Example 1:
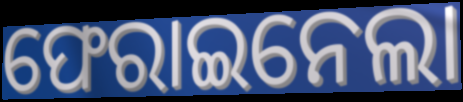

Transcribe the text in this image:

ଫେରାଇନେଲା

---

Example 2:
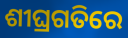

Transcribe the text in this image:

ଶୀଘ୍ରଗତିରେ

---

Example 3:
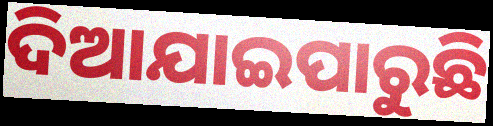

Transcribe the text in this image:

ଦିଆଯାଇପାରୁଛି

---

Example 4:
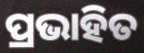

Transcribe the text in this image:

ପ୍ରଭାହିତ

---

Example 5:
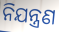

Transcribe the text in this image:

ନିଯନ୍ତ୍ରଣ